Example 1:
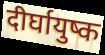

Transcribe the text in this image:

दीर्घायुष्क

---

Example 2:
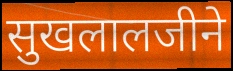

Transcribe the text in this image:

सुखलालजीने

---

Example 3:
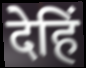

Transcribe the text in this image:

देहिं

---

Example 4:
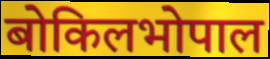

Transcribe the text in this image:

बोकिलभोपाल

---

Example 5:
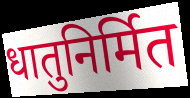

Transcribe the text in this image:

धातुनिर्मित